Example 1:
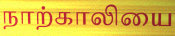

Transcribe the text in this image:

நாற்காலியை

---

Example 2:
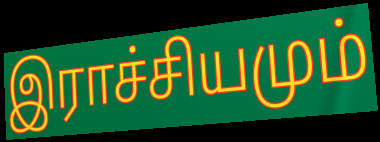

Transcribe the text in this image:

இராச்சியமும்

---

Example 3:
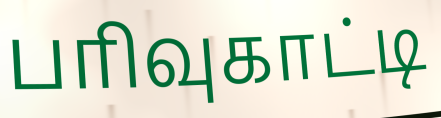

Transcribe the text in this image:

பரிவுகாட்டி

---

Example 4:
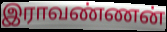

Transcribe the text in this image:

இராவண்ணன்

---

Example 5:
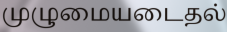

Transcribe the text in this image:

முழுமையடைதல்